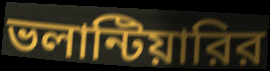
ভলান্টিয়ারির